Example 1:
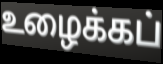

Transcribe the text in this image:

உழைக்கப்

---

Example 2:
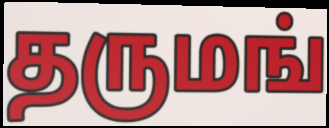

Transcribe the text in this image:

தருமங்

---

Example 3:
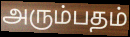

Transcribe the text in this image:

அரும்பதம்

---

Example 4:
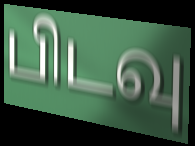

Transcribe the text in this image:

பிடவு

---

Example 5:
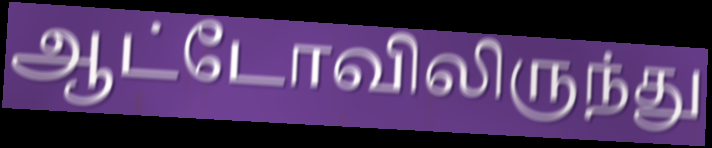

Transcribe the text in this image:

ஆட்டோவிலிருந்து